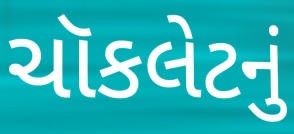
ચૉકલેટનું